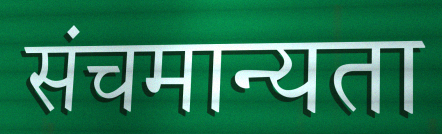
संचमान्यता